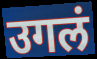
उगलं